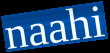
naahi